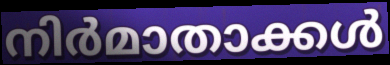
നിർമാതാക്കൾ